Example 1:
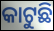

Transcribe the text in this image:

କାଟୁଛି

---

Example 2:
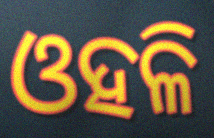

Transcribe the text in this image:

ଓହଳି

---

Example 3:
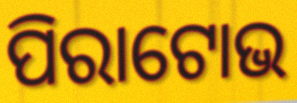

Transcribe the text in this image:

ପିରାଟୋଭ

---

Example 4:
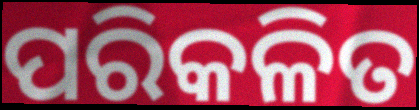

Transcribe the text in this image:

ପରିକଳିତ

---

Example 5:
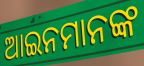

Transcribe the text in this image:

ଆଇନମାନଙ୍କ